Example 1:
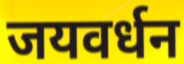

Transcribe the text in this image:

जयवर्धन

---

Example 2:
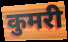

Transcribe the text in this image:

कुमरी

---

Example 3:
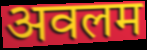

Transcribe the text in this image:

अवलम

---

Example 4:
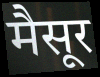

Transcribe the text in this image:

मैसूर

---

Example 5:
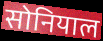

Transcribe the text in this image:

सोनियाल